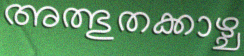
അത്ഭുതക്കാഴ്ച